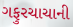
ગફુરચાચાની